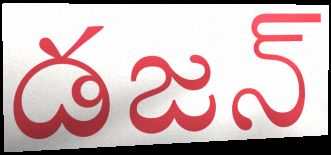
డజన్